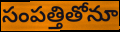
సంపత్తితోనూ